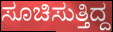
ಸೂಚಿಸುತ್ತಿದ್ದ